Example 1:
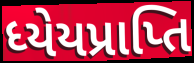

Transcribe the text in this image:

ધ્યેયપ્રાપ્તિ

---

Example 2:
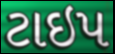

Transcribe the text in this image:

ટાઇપ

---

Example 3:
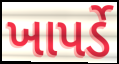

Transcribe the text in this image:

ખાપર્ડે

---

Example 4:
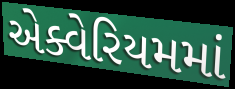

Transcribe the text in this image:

એક્વેરિયમમાં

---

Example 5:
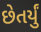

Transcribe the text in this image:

છેતર્યું